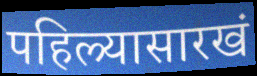
पहिल्यासारखं